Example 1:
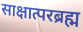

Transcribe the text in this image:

साक्षात्परब्रह्म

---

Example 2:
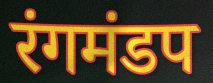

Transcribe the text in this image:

रंगमंडप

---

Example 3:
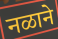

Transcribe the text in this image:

नळाने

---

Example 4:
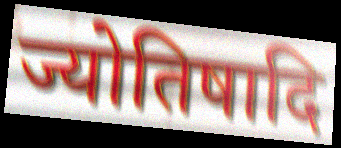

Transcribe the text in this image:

ज्योतिषादि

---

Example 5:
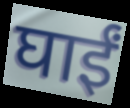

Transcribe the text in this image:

घाईं